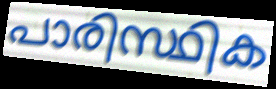
പാരിസ്ഥിക